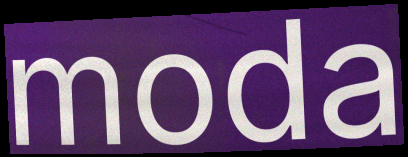
moda